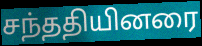
சந்ததியினரை